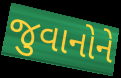
જુવાનોને